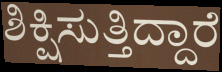
ಶಿಕ್ಷಿಸುತ್ತಿದ್ದಾರೆ